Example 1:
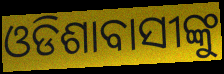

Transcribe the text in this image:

ଓଡିଶାବାସୀଙ୍କୁ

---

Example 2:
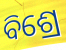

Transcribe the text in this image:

ବିଶ୍ରେ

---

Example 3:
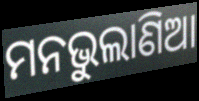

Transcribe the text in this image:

ମନଭୁଲାଣିଆ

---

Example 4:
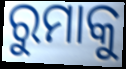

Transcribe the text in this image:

ରୁମାକୁ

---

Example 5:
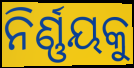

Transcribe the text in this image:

ନିର୍ଣ୍ଣୟକୁ